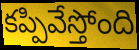
కప్పివేస్తోంది